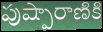
పుష్పారాణికి